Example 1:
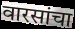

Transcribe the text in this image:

वारसांचा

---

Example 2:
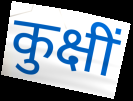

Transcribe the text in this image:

कुक्षीं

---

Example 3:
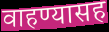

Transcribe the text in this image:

वाहण्यासह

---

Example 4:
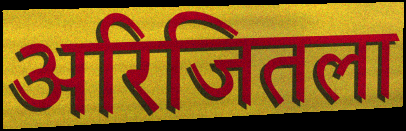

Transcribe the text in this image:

अरिजितला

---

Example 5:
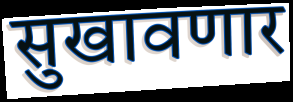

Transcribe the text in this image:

सुखावणार